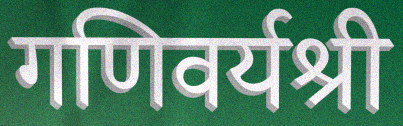
गणिवर्यश्री